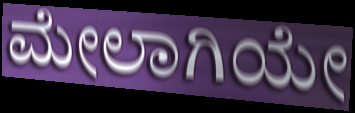
ಮೇಲಾಗಿಯೇ